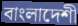
বাংলাদেশী